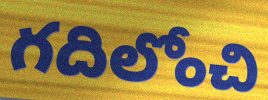
గదిలోంచి